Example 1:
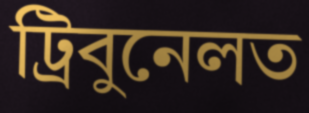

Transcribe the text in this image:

ট্ৰিবুনেলত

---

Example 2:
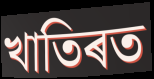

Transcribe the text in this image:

খাতিৰত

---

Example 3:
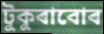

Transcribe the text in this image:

টুকুৰাবোৰ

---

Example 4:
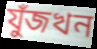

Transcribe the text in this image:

যুঁজখন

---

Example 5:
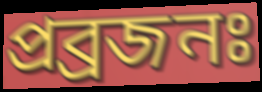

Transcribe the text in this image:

প্ৰব্ৰজনঃ